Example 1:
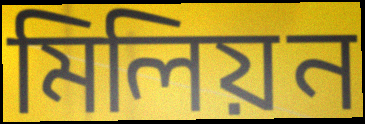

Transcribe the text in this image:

মিলিয়ন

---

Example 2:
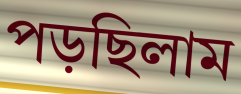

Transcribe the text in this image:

পড়ছিলাম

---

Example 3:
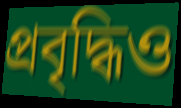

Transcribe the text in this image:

প্রবৃদ্ধিও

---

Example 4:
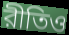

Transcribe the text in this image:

রীতিও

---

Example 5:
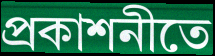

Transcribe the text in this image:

প্রকাশনীতে